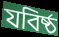
যবিষ্ঠ